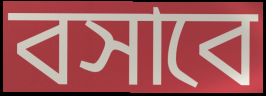
বসাবে